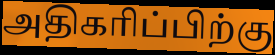
அதிகரிப்பிற்கு